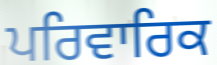
ਪਰਿਵਾਰਿਕ